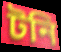
টনি